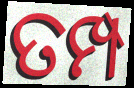
ତମ୍ପ